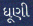
ધૂણી